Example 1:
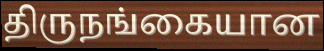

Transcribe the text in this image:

திருநங்கையான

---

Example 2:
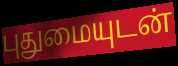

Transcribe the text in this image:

புதுமையுடன்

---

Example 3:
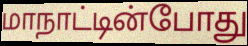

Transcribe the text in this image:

மாநாட்டின்போது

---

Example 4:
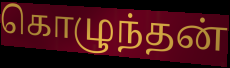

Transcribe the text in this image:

கொழுந்தன்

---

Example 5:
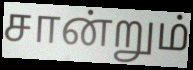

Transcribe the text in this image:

சான்றும்